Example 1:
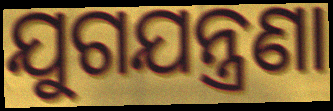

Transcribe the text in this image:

ଯୁଗଯନ୍ତ୍ରଣା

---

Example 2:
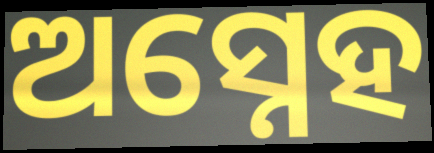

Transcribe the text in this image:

ଅସ୍ନେହ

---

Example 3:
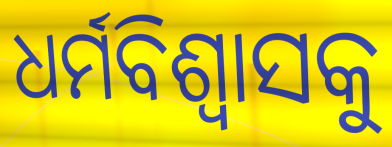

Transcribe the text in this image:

ଧର୍ମବିଶ୍ୱାସକୁ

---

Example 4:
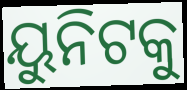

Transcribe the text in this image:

ୟୁନିଟକୁ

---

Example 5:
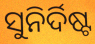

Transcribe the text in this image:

ସୁନିର୍ଦିଷ୍ଟ